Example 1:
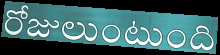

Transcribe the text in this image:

రోజులుంటుంది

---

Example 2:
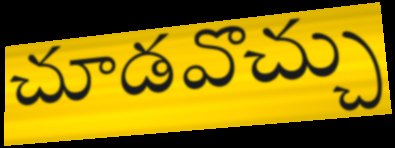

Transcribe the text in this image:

చూడవొచ్చు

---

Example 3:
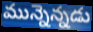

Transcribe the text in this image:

మున్నెన్నడు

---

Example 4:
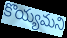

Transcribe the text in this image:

కొయ్యమని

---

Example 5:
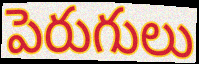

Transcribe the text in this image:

పెరుగులు